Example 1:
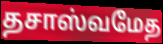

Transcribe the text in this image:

தசாஸ்வமேத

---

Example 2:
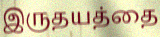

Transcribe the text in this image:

இருதயத்தை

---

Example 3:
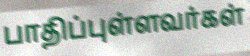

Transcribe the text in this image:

பாதிப்புள்ளவர்கள்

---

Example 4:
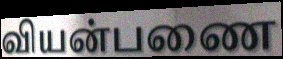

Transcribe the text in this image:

வியன்பணை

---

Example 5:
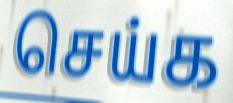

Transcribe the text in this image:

செய்க